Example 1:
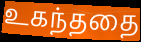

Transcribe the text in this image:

உகந்ததை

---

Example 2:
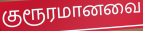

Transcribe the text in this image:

குரூரமானவை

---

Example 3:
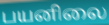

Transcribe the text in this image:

பயனிலை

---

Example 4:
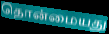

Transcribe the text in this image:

தொன்மையது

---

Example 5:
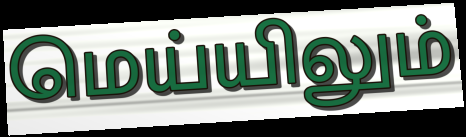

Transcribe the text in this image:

மெய்யிலும்